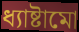
ধ্যাষ্টামো